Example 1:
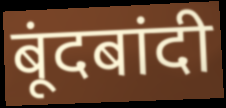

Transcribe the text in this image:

बूंदबांदी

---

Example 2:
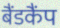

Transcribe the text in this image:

बैंडकैंप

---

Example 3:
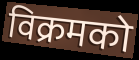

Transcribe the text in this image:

विक्रमको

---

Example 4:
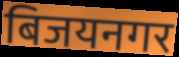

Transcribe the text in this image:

बिजयनगर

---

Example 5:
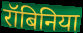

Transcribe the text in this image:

रॉबिनिया